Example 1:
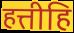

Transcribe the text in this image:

हत्तीहि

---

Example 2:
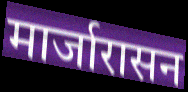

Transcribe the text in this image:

मार्जारासन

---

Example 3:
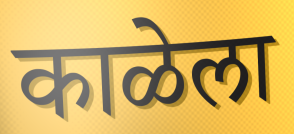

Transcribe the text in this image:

काळेला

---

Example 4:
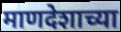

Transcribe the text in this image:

माणदेशाच्या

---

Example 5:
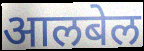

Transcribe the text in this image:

आलबेल